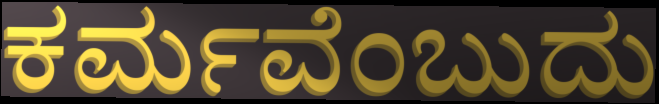
ಕರ್ಮವೆಂಬುದು